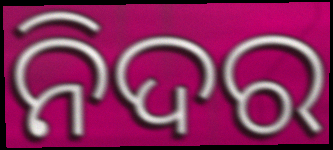
ନିଦର